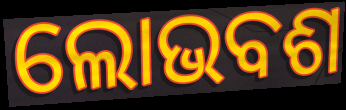
ଲୋଭବଶ